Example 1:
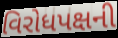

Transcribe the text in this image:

વિરોધપક્ષની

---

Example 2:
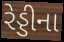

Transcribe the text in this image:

રેડ્ડીના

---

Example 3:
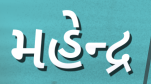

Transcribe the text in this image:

મહેન્દ્ર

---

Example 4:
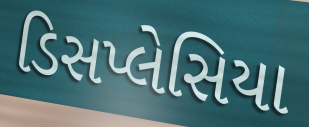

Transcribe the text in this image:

ડિસપ્લેસિયા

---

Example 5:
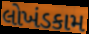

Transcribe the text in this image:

લોખંડકામ